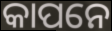
କାପନେ